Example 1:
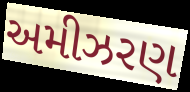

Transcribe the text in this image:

અમીઝરણ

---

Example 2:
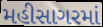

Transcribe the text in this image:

મહીસાગરમાં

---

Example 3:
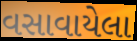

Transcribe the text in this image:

વસાવાયેલા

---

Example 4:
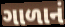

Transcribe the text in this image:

ગાળાનં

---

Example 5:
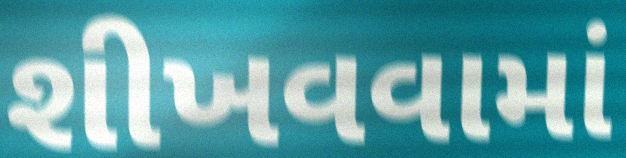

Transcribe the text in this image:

શીખવવામાં